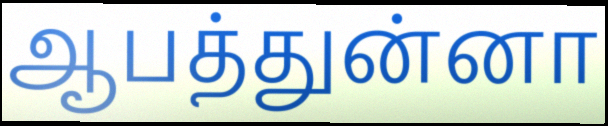
ஆபத்துன்னா